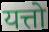
यत्तो